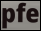
pfe